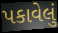
પકાવેલું